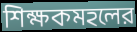
শিক্ষকমহলের